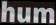
hum